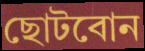
ছোটবোন